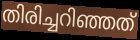
തിരിച്ചറിഞ്ഞത്